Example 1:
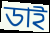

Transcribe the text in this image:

ডাই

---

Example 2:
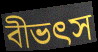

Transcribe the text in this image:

বীভৎস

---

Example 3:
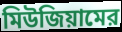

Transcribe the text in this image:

মিউজিয়ামের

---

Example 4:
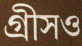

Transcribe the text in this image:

গ্রীসও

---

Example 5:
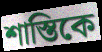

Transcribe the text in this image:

শাস্তিকে